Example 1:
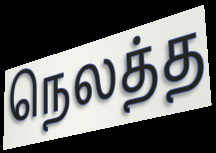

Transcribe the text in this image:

நெலத்த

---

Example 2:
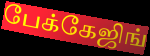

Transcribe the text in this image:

பேக்கேஜிங்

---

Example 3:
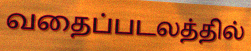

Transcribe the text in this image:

வதைப்படலத்தில்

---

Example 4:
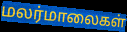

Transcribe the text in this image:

மலர்மாலைகள்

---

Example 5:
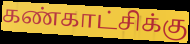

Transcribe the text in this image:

கண்காட்சிக்கு